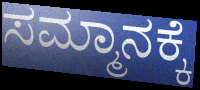
ಸಮ್ಮಾನಕ್ಕೆ